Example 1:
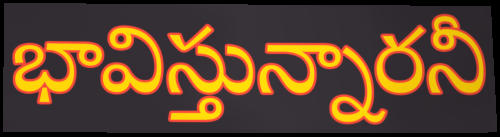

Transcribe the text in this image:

భావిస్తున్నారనీ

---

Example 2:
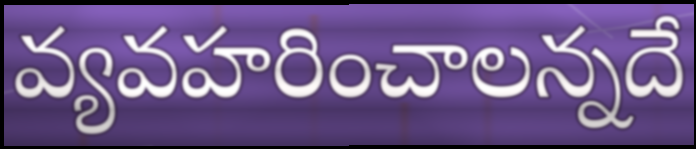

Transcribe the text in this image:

వ్యవహరించాలన్నదే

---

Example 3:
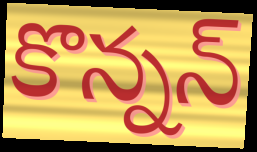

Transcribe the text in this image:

కొన్నన్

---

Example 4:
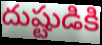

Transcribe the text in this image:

దుష్టుడికి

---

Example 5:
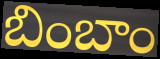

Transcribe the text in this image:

బింబాం